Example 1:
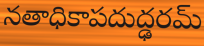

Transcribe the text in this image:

నతాధికాపదుద్ఢరమ్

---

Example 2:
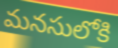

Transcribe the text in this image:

మనసులోకి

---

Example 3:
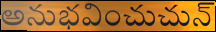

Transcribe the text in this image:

అనుభవించుచున్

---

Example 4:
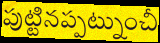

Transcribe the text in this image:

పుట్టినప్పట్నుంచీ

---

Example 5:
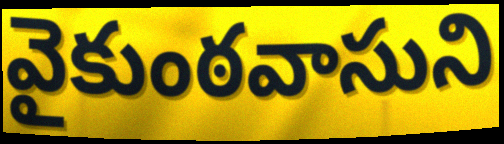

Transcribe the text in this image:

వైకుంఠవాసుని